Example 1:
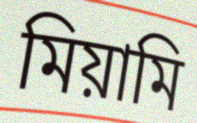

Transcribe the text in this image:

মিয়ামি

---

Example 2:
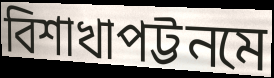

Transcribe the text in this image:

বিশাখাপট্টনমে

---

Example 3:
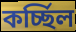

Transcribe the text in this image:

কর্চ্ছিল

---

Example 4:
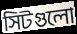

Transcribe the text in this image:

সিটগুলো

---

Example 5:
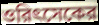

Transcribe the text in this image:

ওরিৎসেকের